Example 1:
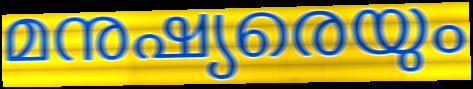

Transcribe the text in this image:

മനുഷ്യരെയും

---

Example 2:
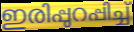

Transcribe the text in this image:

ഇരിപ്പുറപ്പിച്ച്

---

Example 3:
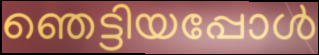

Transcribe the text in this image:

ഞെട്ടിയപ്പോൾ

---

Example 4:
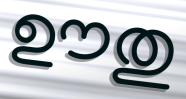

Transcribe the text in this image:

ഊതു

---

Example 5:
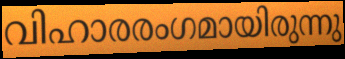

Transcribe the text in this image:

വിഹാരരംഗമായിരുന്നു